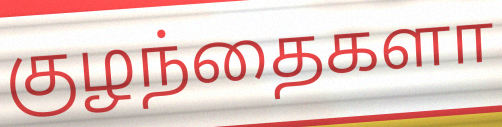
குழந்தைகளா